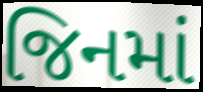
જિનમાં